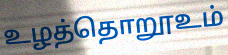
உழத்தொறூஉம்